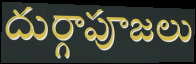
దుర్గాపూజలు